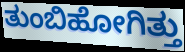
ತುಂಬಿಹೋಗಿತ್ತು